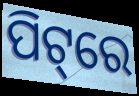
ପିଟ୍‌ରେ